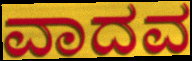
ವಾದವ